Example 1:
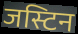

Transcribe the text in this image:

जस्‍टिन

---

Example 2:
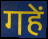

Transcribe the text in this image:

गहें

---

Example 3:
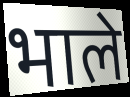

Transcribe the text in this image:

भाले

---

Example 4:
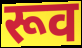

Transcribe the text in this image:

रूव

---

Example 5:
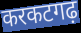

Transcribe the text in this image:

करकटगढ़